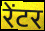
रेंटर